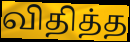
விதித்த